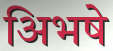
अिभषे